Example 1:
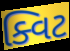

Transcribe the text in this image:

ક્વિટ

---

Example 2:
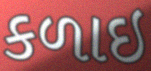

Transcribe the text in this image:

કળાઇ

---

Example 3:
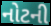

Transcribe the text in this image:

નોટની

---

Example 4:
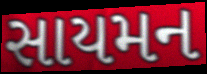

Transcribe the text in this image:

સાયમન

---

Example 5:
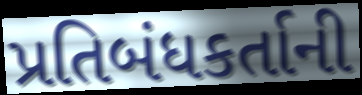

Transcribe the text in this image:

પ્રતિબંધકર્તાની